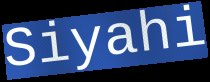
Siyahi